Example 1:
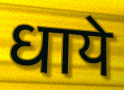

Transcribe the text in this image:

धाये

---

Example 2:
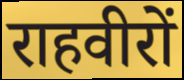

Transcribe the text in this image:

राहवीरों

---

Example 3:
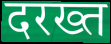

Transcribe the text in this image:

दरख्त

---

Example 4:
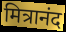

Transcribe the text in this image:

मित्रानंद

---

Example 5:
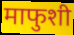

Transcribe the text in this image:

माफुशी